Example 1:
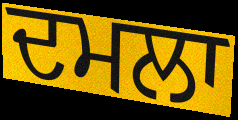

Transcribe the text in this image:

ਦਮਲਾ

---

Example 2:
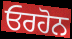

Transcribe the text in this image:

ਓਰਹੋਨ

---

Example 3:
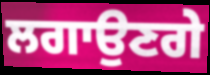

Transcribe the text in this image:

ਲਗਾਉਣਗੇ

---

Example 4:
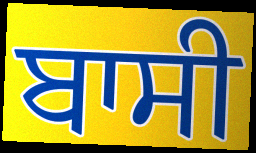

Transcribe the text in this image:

ਬਾਸੀ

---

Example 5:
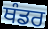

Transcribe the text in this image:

ਥੰਡਰ